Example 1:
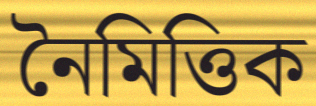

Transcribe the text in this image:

নৈমিত্তিক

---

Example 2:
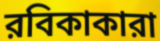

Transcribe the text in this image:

রবিকাকারা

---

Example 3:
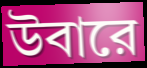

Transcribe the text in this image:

উবারে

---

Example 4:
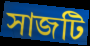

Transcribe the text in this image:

সাজটি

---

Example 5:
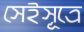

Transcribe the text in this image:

সেইসূত্রে